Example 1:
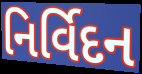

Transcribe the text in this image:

નિર્વિદન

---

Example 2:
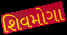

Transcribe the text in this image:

શિવમોગા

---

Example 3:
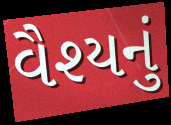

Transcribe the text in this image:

વૈશ્યનું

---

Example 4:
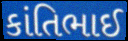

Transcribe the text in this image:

કાંતિભાઈ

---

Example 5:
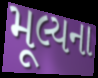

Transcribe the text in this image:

મૂલ્યના